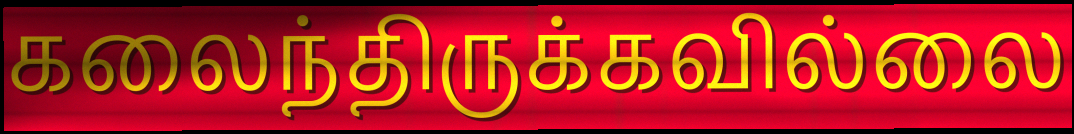
கலைந்திருக்கவில்லை